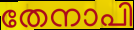
തേനാപി